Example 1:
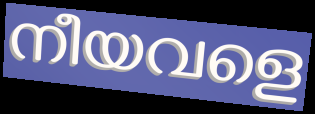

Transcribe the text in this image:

നീയവളെ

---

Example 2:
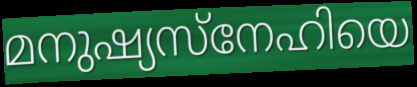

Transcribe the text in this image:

മനുഷ്യസ്നേഹിയെ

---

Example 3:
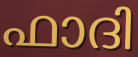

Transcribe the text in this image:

ഫാദി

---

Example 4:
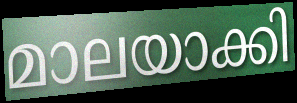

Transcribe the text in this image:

മാലയാക്കി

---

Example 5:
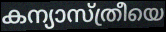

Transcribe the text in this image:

കന്യാസ്ത്രീയെ